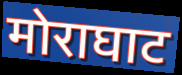
मोराघाट